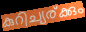
കുറിച്യര്ക്കും